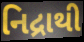
નિદ્રાથી